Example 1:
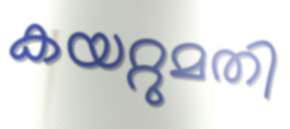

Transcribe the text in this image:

കയറ്റുമതി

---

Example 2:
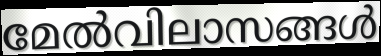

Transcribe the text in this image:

മേൽവിലാസങ്ങൾ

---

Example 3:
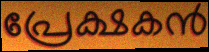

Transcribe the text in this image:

പ്രേക്ഷകൻ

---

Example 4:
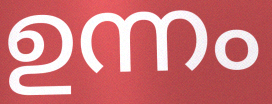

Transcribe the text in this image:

ഉന്നം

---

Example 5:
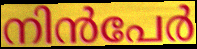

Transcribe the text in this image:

നിൻപേർ